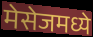
मेसेजमध्ये